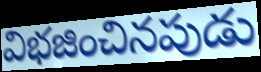
విభజించినపుడు